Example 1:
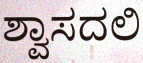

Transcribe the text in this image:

ಶ್ವಾಸದಲಿ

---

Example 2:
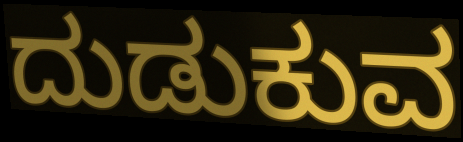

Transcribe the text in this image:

ದುಡುಕುವ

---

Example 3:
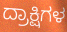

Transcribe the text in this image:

ದ್ರಾಕ್ಷಿಗಳ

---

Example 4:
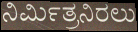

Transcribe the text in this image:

ನಿರ್ಮಿತ್ರನಿರಲು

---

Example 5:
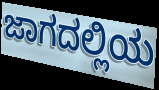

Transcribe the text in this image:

ಜಾಗದಲ್ಲಿಯ